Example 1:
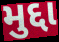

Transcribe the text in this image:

મુદ્દા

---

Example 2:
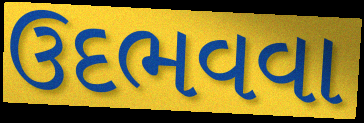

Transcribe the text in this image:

ઉદભવવા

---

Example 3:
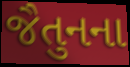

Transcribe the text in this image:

જૈતુનના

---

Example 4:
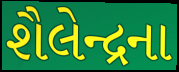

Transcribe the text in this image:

શૈલેન્દ્રના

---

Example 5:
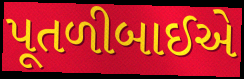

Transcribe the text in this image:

પૂતળીબાઈએ